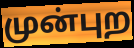
முன்புற